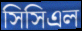
সিসিএল